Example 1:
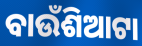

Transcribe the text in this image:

ବାଉଁଶିଆଟା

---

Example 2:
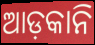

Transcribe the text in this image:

ଆଡ଼କାନି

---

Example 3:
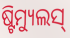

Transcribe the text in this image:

ଷ୍ଟିମ୍ୟୁଲସ୍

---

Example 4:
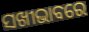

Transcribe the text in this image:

ସଖୀଭାବରେ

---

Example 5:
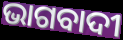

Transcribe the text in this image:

ଭାଗବାଦୀ